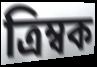
ত্রিম্বক